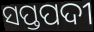
ସପ୍ତପଦୀ